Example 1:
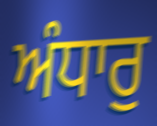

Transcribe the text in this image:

ਅੰਧਾਰੁ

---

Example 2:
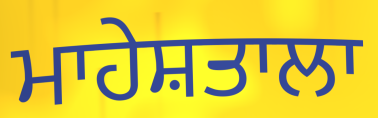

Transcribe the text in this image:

ਮਾਹੇਸ਼ਤਾਲਾ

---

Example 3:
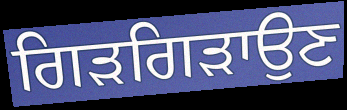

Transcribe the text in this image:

ਗਿੜਗਿੜਾਉਣ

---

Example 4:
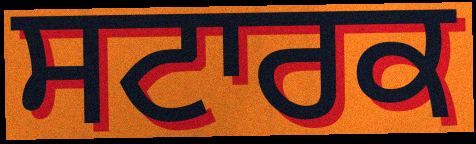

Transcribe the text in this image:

ਸਟਾਰਕ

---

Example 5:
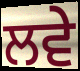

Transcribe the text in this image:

ਲਵੇ